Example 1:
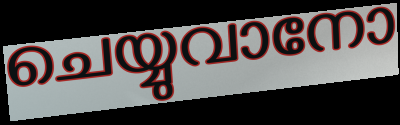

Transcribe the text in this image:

ചെയ്യുവാനോ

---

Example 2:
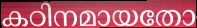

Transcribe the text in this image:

കഠിനമായതോ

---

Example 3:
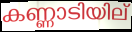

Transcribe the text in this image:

കണ്ണാടിയില്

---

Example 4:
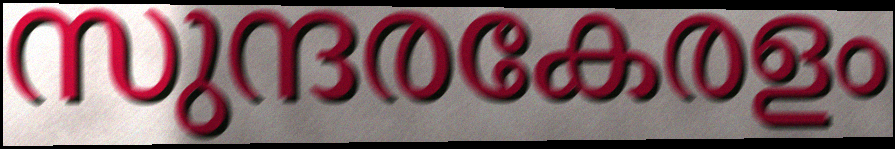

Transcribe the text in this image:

സുന്ദരകേരളം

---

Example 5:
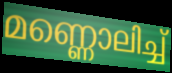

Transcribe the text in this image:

മണ്ണൊലിച്ച്